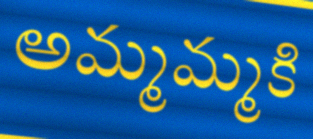
అమ్మమ్మకి